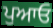
ਪੁਆਓ